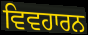
ਵਿਵਹਾਰਨ